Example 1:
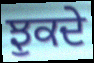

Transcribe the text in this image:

ਝੁਕਦੇ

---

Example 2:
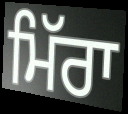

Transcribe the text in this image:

ਮਿੱਰਾ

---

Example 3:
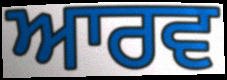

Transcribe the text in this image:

ਆਰਵ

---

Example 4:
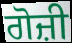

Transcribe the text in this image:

ਗੋਜ਼ੀ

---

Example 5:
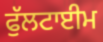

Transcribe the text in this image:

ਫੁੱਲਟਾਈਮ